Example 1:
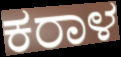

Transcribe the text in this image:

ಕರಾಳ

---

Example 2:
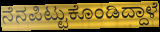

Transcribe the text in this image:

ನೆನಪಿಟ್ಟುಕೊಂಡಿದ್ದಾಳೆ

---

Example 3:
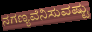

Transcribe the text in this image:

ನಗಣ್ಯವೆನಿಸುವಷ್ಟು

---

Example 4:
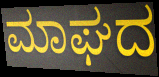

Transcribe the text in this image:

ಮಾಘದ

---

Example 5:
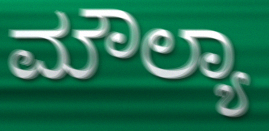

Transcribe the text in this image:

ಮೌಲ್ಯಾ